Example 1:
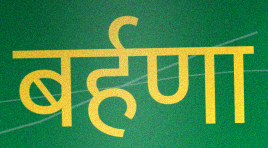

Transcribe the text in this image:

बर्हणा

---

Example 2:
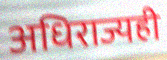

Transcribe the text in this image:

अधिराज्यही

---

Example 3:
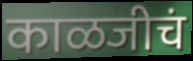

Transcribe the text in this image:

काळजीचं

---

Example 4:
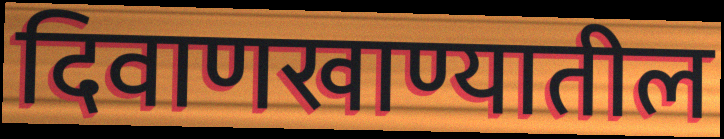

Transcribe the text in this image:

दिवाणखाण्यातील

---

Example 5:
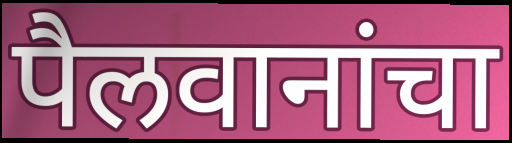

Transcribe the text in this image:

पैलवानांचा